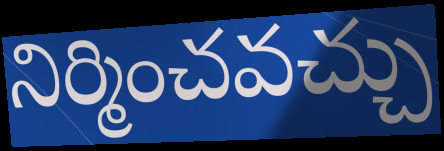
నిర్మించవచ్చు